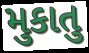
મુકાતુ